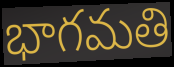
భాగమతి